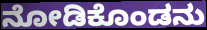
ನೋಡಿಕೊಂಡನು